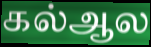
கல்ஆல